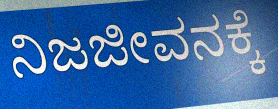
ನಿಜಜೀವನಕ್ಕೆ